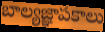
బాల్యజ్ఞాపకాలు